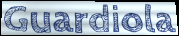
Guardiola